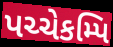
પચ્ચેકમ્પિ